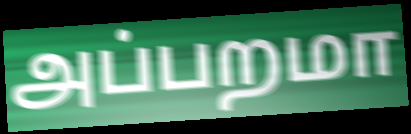
அப்பறமா